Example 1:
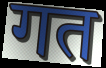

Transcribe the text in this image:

गत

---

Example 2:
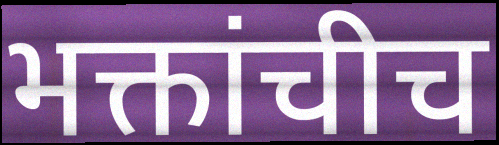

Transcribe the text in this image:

भक्तांचीच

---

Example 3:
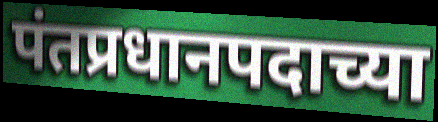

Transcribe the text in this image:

पंतप्रधानपदाच्या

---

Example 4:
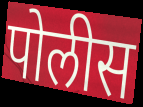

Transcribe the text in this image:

पोलीस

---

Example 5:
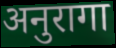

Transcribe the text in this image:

अनुरागा